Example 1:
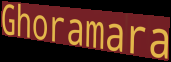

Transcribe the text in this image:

Ghoramara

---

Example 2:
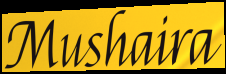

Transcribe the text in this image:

Mushaira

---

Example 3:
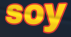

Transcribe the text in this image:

soy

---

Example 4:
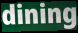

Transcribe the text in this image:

dining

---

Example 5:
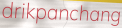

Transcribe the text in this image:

drikpanchang